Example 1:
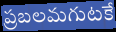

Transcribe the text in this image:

ప్రబలమగుటకే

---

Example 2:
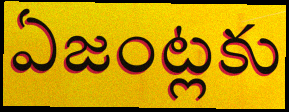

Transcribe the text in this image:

ఏజంట్లకు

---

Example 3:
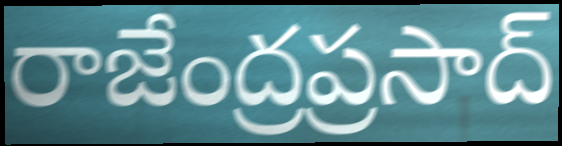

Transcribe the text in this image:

రాజేంద్రప్రసాద్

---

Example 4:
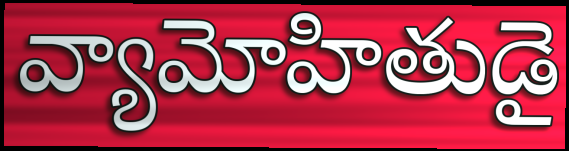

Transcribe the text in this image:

వ్యామోహితుడై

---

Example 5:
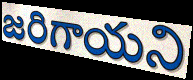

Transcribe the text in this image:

జరిగాయని